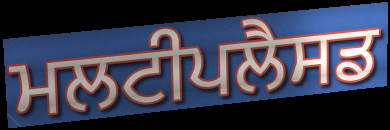
ਮਲਟੀਪਲੈਸਡ